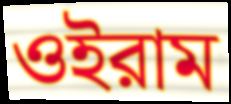
ওইরাম